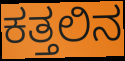
ಕತ್ತಲಿನ